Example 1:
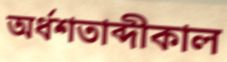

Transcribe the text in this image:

অর্ধশতাব্দীকাল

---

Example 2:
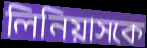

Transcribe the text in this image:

লিনিয়াসকে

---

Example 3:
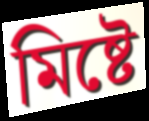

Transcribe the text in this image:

মিষ্টে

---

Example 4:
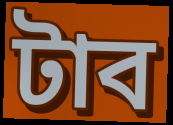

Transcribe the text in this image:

টাব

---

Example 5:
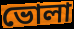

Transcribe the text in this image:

ভোলা